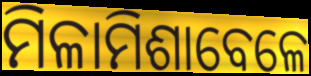
ମିଳାମିଶାବେଳେ